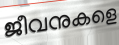
ജീവനുകളെ